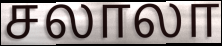
சலாலா